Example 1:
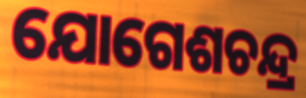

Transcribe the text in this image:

ଯୋଗେଶଚନ୍ଦ୍ର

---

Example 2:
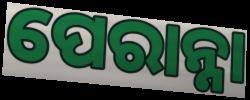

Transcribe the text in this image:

ପେରାନ୍ନା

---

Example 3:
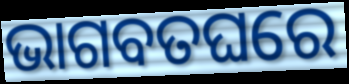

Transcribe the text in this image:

ଭାଗବତଘରେ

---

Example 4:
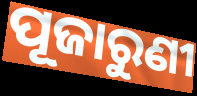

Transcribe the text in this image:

ପୂଜାରୁଣୀ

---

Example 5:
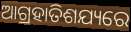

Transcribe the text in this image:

ଆଗ୍ରହାତିଶଯ୍ୟରେ